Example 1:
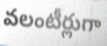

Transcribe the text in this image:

వలంటీర్లుగా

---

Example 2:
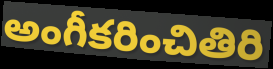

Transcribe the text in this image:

అంగీకరించితిరి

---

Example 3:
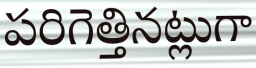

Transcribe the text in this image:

పరిగెత్తినట్లుగా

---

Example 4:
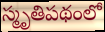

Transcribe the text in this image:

స్మృతిపథంలో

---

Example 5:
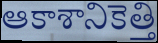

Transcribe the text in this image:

ఆకాశానికెత్తి